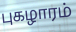
புகழாரம்